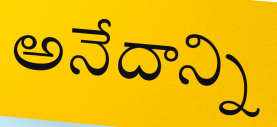
అనేదాన్ని